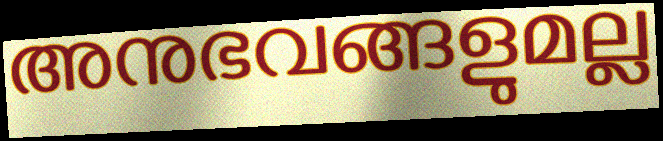
അനുഭവങ്ങളുമല്ല